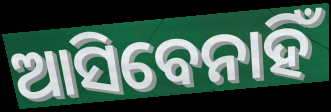
ଆସିବେନାହିଁ